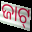
ଜାଟ୍